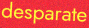
desparate